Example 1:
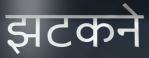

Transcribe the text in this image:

झटकने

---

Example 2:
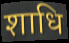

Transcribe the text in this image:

शाधि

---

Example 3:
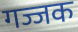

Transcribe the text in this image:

गज्जक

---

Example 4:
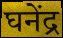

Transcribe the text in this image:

घनेंद्र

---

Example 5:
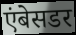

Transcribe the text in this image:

एंबेसडर